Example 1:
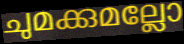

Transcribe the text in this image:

ചുമക്കുമല്ലോ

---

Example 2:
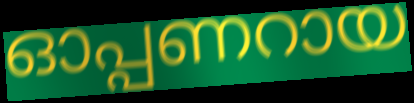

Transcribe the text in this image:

ഓപ്പണറായ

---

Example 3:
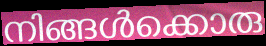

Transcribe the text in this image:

നിങ്ങൾക്കൊരു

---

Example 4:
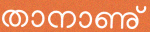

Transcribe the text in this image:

താനാണു്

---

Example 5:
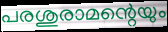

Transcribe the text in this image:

പരശുരാമന്റെയും